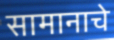
सामानाचे